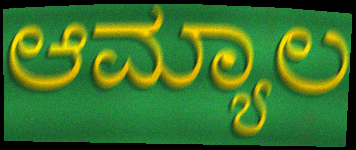
ಆಮ್ಯಾಲ